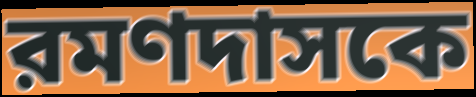
রমণদাসকে